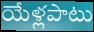
యేళ్లపాటు